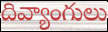
దివ్యాంగులు